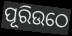
ପୂରିଉଠେ